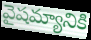
వైషమ్యానికి